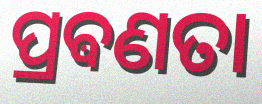
ପ୍ରଵଣତା